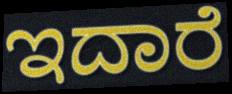
ಇದಾರೆ